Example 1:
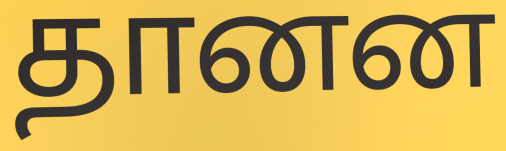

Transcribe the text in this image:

தானன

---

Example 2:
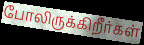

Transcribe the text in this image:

போலிருக்கிறீர்கள்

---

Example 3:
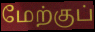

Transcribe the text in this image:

மேற்குப்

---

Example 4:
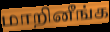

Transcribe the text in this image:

மாறினீங்க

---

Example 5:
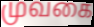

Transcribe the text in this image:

முவகை